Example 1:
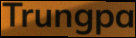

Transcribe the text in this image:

Trungpa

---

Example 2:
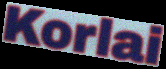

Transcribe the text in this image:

Korlai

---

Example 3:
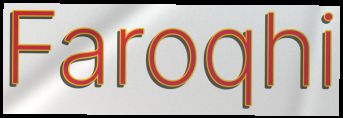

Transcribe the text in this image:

Faroqhi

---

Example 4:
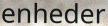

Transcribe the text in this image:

enheder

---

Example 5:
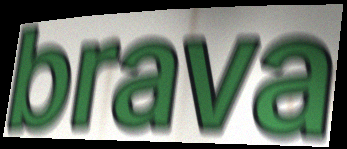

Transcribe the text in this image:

brava